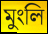
মুংলি